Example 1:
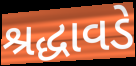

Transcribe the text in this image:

શ્રદ્ધાવડે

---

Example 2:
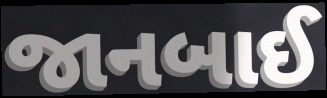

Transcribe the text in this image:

જાનબાઈ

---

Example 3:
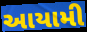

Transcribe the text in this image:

આયામી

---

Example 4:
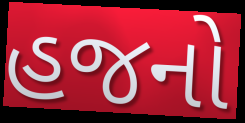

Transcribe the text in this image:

હજનો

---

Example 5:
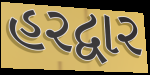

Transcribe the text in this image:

હરદ્વાર